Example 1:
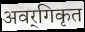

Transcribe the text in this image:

अवर्गिकृत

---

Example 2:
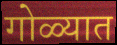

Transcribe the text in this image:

गोळ्यात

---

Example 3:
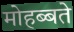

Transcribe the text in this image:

मोहब्बते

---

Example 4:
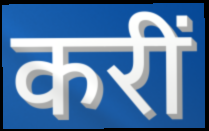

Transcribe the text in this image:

करीं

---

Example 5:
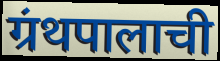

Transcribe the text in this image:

ग्रंथपालाची